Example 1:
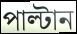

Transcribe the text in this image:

পাল্টান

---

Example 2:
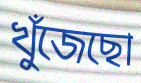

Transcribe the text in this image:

খুঁজেছো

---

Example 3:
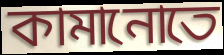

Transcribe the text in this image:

কামানোতে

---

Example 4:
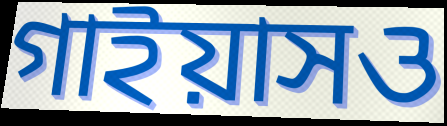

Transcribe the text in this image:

গাইয়াসও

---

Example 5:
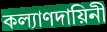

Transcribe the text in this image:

কল্যাণদায়িনী